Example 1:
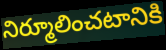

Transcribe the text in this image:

నిర్మూలించటానికి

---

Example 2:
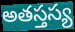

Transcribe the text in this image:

అతస్తస్య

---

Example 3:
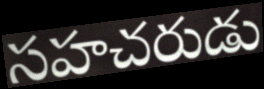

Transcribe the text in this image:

సహచరుడు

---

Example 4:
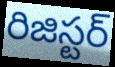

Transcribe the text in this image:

రిజిస్టర్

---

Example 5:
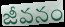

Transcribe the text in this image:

జీవనం